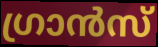
ഗ്രാൻസ്